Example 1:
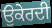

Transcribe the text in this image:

ਉਕੇਰਦੀ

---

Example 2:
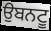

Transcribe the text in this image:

ਉਬਨਟੂ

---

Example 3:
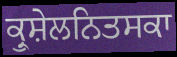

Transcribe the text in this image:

ਕ੍ਰੁਸ਼ੇਲਨਿਤਸਕਾ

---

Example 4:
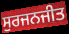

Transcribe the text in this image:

ਸੁਰਜਨਜੀਤ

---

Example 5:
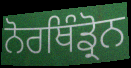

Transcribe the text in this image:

ਨੋਰਥਿੰਡ੍ਰੋਨ